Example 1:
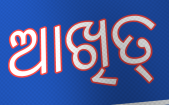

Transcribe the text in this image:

ଆଖିତ୍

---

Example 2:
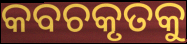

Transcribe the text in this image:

କବଚକୃତକୁ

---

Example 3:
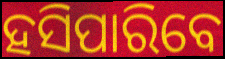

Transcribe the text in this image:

ହସିପାରିବେ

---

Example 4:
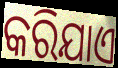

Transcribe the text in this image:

କରିଯାଏ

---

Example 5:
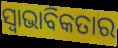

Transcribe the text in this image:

ସ୍ଵାଭାବିକତାର